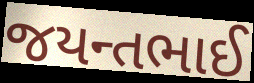
જયન્તભાઈ